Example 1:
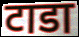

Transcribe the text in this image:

टाडा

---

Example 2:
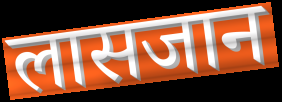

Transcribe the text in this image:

लासजान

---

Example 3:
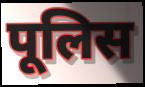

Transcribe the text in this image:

पूलिस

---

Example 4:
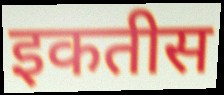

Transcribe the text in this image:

इकतीस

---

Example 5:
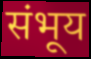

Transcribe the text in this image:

संभूय